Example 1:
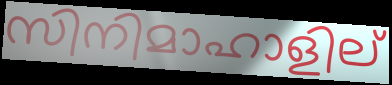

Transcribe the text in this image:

സിനിമാഹാളില്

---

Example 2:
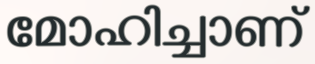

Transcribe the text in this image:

മോഹിച്ചാണ്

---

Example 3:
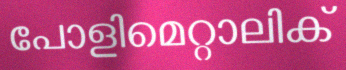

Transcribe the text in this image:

പോളിമെറ്റാലിക്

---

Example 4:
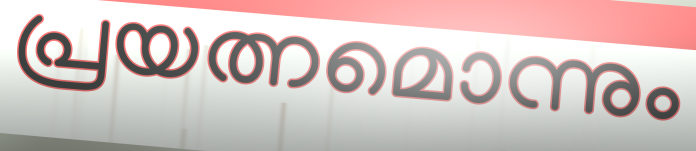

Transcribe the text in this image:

പ്രയത്നമൊന്നും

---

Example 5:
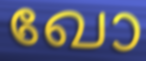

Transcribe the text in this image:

ഖോ